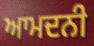
ਆਮਦਨੀ